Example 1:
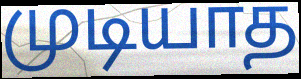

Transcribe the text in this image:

முடியாத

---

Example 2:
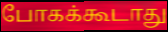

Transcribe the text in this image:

போகக்கூடாது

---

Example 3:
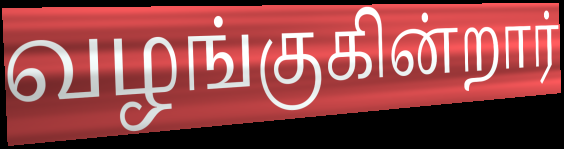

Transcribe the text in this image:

வழங்குகின்றார்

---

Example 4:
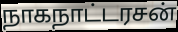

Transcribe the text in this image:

நாகநாட்டரசன்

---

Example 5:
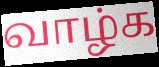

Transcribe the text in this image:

வாழ்க